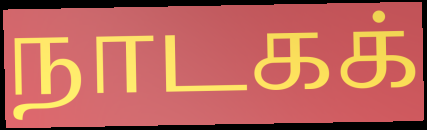
நாடகக்